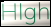
HIgh